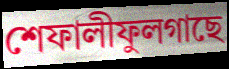
শেফালীফুলগাছে